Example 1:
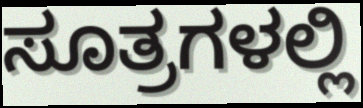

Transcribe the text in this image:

ಸೂತ್ರಗಳಲ್ಲಿ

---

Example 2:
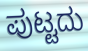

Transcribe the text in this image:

ಪುಟ್ಟದು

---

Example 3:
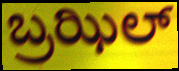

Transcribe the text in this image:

ಬ್ರಝಿಲ್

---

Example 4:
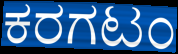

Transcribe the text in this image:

ಕರಗಟಂ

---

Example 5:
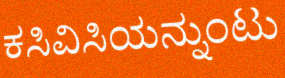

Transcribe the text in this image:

ಕಸಿವಿಸಿಯನ್ನುಂಟು